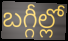
బగ్గీల్లో